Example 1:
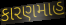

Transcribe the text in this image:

કારણમાહ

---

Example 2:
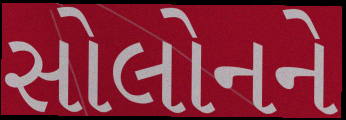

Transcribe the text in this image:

સોલોનને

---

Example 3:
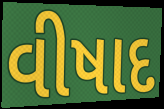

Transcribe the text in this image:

વીષાદ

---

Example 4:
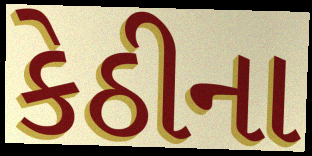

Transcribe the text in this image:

કેઠીના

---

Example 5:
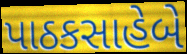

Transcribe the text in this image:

પાઠકસાહેબે